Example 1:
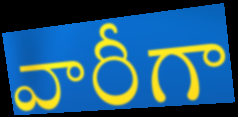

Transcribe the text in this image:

వారీగా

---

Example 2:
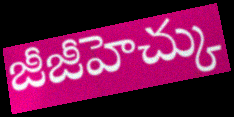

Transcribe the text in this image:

జీజీహెచ్కు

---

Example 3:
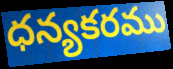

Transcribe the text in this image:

ధన్యకరము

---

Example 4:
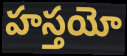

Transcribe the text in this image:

హస్తయో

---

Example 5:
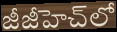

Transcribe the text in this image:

జీజీహెచ్‌లో